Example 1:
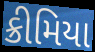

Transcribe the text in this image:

ક્રીમિયા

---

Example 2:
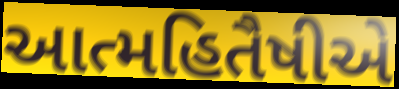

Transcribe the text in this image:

આત્મહિતૈષીએ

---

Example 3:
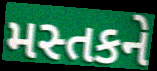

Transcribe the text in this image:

મસ્તકને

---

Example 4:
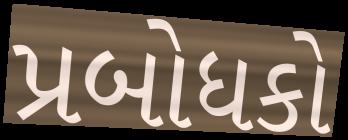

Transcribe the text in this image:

પ્રબોધકો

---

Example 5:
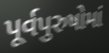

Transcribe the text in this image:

પૂર્વપુરુષોમાં